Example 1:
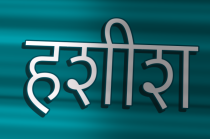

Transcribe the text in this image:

हशीश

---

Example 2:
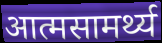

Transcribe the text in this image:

आत्मसामर्थ्य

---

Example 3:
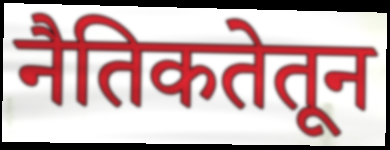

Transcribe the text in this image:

नैतिकतेतून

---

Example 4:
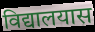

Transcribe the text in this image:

विद्यालयास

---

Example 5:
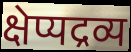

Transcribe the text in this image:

क्षेप्यद्रव्य